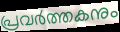
പ്രവർത്തകനും